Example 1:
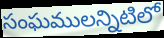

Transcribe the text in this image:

సంఘములన్నిటిలో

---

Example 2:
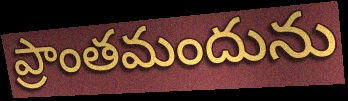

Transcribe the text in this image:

ప్రాంతమందును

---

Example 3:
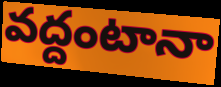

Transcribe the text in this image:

వద్దంటానా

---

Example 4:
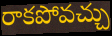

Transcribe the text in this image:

రాకపోవచ్చు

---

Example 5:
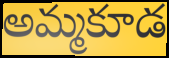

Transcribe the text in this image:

అమ్మకూడ